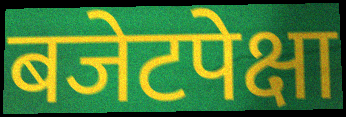
बजेटपेक्षा